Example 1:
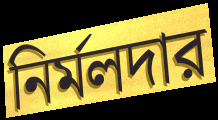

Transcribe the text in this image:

নির্মলদার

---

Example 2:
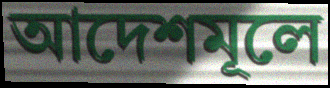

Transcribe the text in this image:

আদেশমূলে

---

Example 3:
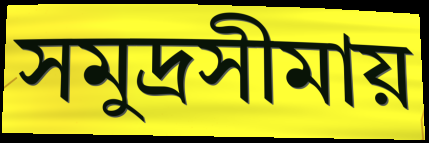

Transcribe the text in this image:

সমুদ্রসীমায়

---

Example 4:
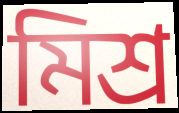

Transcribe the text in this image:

মিশ্র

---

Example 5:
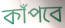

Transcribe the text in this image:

কাঁপবে